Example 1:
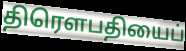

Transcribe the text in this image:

திரெளபதியைப்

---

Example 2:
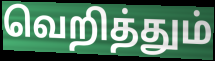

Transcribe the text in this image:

வெறித்தும்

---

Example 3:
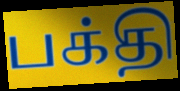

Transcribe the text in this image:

பக்தி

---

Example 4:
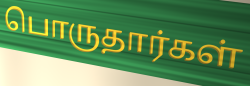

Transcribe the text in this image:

பொருதார்கள்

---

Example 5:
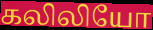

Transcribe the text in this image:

கலிலியோ